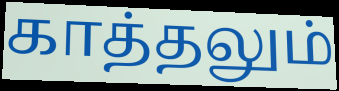
காத்தலும்